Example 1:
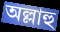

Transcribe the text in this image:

অল্লাহু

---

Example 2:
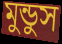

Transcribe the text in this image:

মুন্ডুস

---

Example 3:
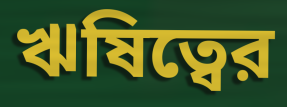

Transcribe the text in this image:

ঋষিত্বের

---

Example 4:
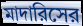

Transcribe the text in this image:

মাদারিসের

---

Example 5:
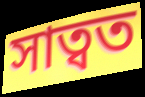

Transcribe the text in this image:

সাত্বত